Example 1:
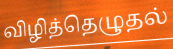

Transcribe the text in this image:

விழித்தெழுதல்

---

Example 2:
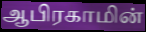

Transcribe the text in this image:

ஆபிரகாமின்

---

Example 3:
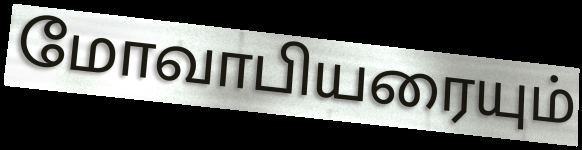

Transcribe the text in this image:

மோவாபியரையும்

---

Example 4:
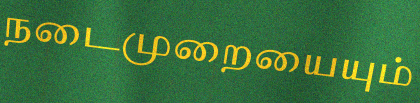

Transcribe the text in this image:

நடைமுறையையும்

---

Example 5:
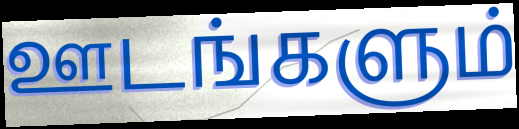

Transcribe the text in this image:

ஊடங்களும்